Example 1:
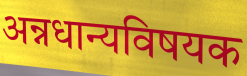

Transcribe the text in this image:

अन्नधान्यविषयक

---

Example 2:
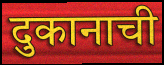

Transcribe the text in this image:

दुकानाची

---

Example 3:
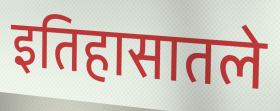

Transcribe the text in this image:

इतिहासातले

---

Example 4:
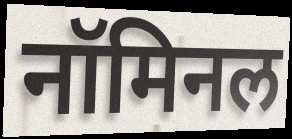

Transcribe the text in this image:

नॉमिनल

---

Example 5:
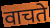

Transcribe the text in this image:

वाचते